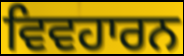
ਵਿਵਹਾਰਨ